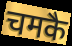
चमकै